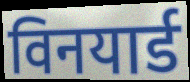
विनयार्ड